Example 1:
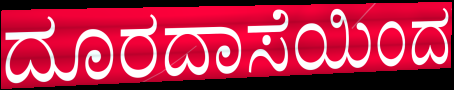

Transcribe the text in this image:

ದೂರದಾಸೆಯಿಂದ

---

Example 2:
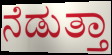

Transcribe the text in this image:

ನೆಡುತ್ತಾ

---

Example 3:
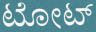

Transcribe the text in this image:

ಟೋಟ್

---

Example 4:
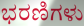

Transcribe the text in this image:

ಭರಣಿಗಳು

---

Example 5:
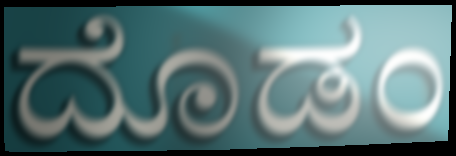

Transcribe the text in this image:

ದೊಡಂ